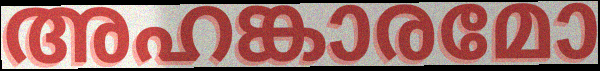
അഹങ്കാരമോ